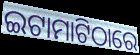
ଇଟାମାଟିଠାରେ